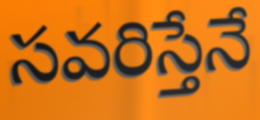
సవరిస్తేనే